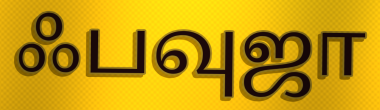
ஃபவுஜா